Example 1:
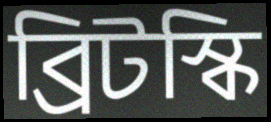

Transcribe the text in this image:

ব্রিটস্কি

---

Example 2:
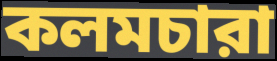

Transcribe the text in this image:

কলমচারা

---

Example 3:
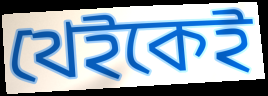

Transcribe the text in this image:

থেইকেই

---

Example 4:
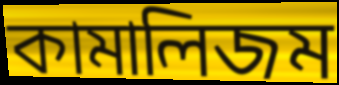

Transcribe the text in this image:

কামালিজম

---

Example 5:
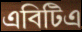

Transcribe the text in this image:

এবিটিএ